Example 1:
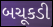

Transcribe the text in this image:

બચૂકડી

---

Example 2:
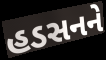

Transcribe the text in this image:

હડસનને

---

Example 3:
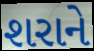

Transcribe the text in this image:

શરાને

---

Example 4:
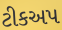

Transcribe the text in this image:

ટીકઅપ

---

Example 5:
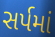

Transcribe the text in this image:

સર્પમાં